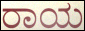
ರಾಯ